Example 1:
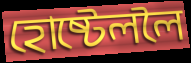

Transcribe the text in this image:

হোষ্টেললৈ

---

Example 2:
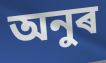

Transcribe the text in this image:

অনুৰ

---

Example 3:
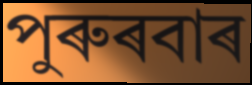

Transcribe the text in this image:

পুৰুৰবাৰ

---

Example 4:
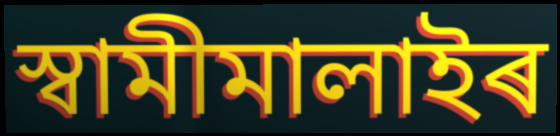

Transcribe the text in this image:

স্বামীমালাইৰ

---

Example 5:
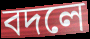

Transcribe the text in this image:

বদলে